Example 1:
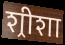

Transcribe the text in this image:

श्रीशा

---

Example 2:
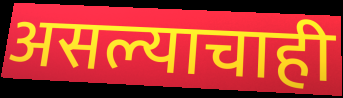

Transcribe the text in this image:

असल्याचाही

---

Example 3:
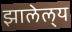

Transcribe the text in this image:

झालेल्य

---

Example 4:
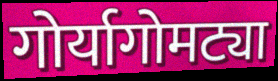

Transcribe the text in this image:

गोर्यागोमट्या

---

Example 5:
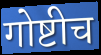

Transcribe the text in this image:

गोष्टीच